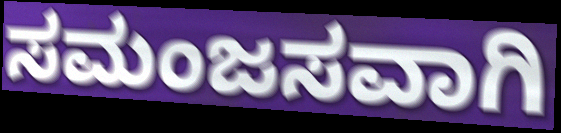
ಸಮಂಜಸವಾಗಿ